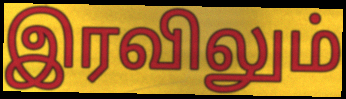
இரவிலும்